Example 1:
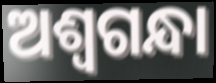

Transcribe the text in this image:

ଅଶ୍ୱଗନ୍ଧା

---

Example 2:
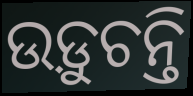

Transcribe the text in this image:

ଉଡ଼ୁଚନ୍ତି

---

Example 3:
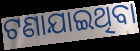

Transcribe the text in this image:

ଟଣାଯାଇଥିବା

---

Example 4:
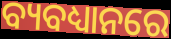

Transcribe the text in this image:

ବ୍ୟବଧ୍ୟାନରେ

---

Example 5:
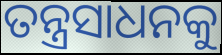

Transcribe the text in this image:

ତନ୍ତ୍ରସାଧନକୁ